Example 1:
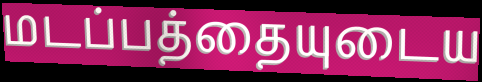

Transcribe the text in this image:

மடப்பத்தையுடைய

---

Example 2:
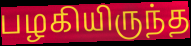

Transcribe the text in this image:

பழகியிருந்த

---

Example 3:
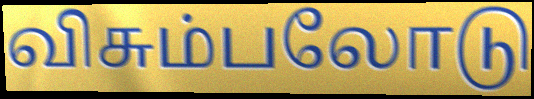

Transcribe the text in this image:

விசும்பலோடு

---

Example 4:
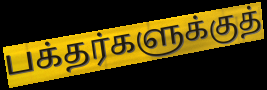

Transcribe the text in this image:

பக்தர்களுக்குத்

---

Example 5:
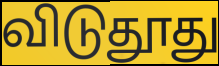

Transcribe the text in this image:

விடுதூது